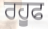
ਰਹੂਫ